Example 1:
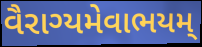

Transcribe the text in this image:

વૈરાગ્યમેવાભયમ્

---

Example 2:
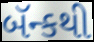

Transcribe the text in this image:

બૅન્કથી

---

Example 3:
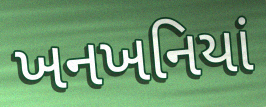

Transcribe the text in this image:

ખનખનિયાં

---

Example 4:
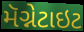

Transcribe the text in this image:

મૅગ્નેટાઇટ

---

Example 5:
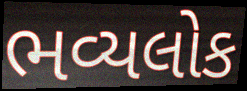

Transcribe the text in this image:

ભવ્યલોક